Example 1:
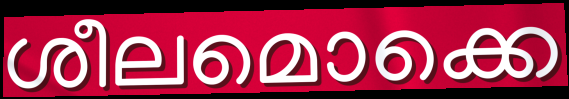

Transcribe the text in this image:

ശീലമൊക്കെ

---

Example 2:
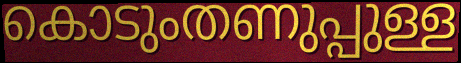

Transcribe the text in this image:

കൊടുംതണുപ്പുള്ള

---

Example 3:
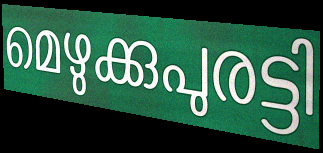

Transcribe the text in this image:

മെഴുക്കുപുരട്ടി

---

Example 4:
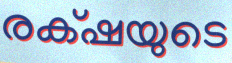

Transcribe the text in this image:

രക്‌ഷയുടെ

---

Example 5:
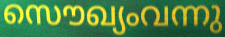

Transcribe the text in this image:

സൌഖ്യംവന്നു